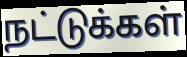
நட்டுக்கள்